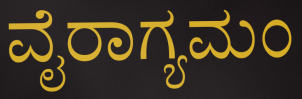
ವೈರಾಗ್ಯಮಂ